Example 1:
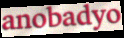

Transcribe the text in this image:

anobadyo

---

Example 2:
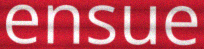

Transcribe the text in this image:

ensue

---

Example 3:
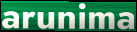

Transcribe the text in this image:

arunima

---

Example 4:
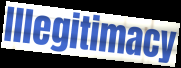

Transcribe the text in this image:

Illegitimacy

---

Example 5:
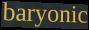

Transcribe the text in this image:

baryonic